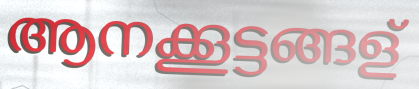
ആനക്കൂട്ടങ്ങള്